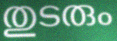
തുടരും